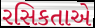
રસિકતાએ